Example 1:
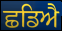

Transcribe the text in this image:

ਛਡਿਐ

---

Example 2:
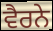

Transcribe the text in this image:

ਵੈਰਨੇ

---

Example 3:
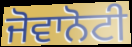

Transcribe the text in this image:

ਜੋਵਾਨੋਟੀ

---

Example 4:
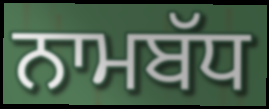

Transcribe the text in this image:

ਨਾਮਬੱਧ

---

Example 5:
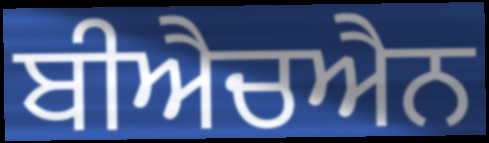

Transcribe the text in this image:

ਬੀਐਚਐਨ